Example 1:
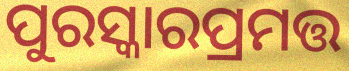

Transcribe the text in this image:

ପୁରସ୍କାରପ୍ରମତ୍ତ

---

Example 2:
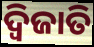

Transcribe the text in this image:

ଦ୍ୱିଜାତି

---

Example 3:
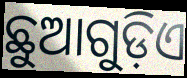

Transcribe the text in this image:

ଛୁଆଗୁଡ଼ିଏ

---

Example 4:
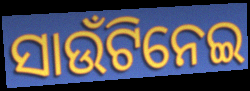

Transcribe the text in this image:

ସାଉଁଟିନେଇ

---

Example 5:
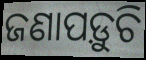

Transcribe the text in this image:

ଜଣାପଡ଼ୁଚି